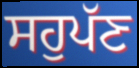
ਸਹੁਪੱਣ